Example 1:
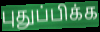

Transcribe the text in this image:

புதுப்பிக்க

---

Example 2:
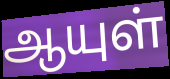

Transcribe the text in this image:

ஆயுள்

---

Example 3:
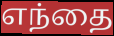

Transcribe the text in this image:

எந்தை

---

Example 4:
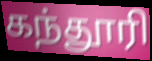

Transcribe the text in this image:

கந்தூரி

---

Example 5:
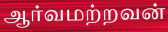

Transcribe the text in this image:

ஆர்வமற்றவன்